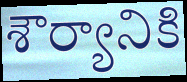
శౌర్యానికి